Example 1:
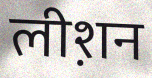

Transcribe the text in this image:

लीश़न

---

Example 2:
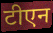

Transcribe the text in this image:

टीएन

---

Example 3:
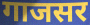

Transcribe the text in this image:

गाजसर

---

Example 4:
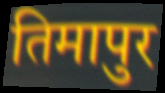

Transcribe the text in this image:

तिमापुर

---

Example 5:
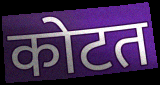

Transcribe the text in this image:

कोटत